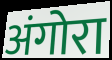
अंगोरा